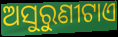
ଅସୁରୁଣୀଟାଏ